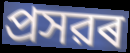
প্ৰসৱৰ